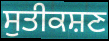
ਸੁਤੀਕਸ਼ਣ